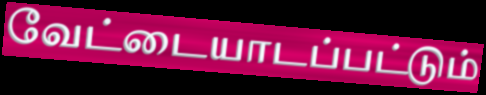
வேட்டையாடப்பட்டும்